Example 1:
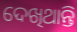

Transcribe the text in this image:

ଦେଖିଥାନ୍ତି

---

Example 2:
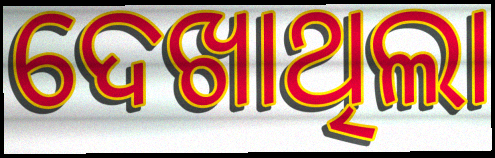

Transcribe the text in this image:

ଦେଖାଥିଲା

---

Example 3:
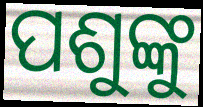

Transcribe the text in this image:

ପଶୁଙ୍କୁ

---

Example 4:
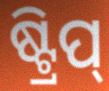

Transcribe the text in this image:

ଷ୍ଟ୍ରିପ୍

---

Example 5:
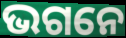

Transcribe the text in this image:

ଭଗନେ